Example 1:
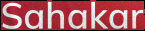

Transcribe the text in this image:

Sahakar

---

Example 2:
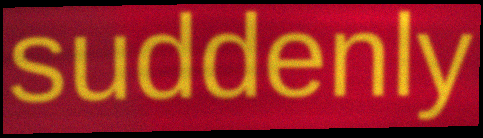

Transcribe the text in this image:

suddenly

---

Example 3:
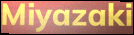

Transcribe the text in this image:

Miyazaki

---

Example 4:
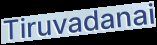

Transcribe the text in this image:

Tiruvadanai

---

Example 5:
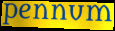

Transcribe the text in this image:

pennum